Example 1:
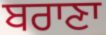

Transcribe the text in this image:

ਬਰਾਣਾ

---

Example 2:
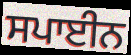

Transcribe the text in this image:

ਸਪਾਈਨ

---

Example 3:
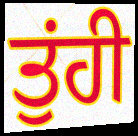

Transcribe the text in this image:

ਤੁਂਹੀ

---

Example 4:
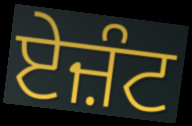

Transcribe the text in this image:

ਏਜ਼ੰਟ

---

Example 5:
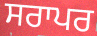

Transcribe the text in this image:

ਸਰਾਪਰ